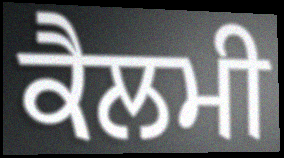
ਕੈਲਮੀ